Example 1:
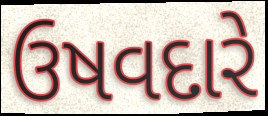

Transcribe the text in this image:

ઉષવદારે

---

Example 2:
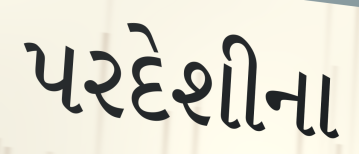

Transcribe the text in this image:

પરદેશીના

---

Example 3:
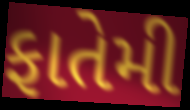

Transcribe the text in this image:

ફાતેમી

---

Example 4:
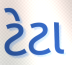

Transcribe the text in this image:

ટેટા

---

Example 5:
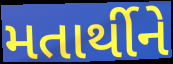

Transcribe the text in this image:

મતાર્થીને